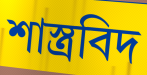
শাস্ত্ৰবিদ